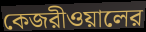
কেজরীওয়ালের